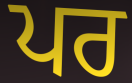
ਪਰ